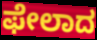
ಫೇಲಾದ